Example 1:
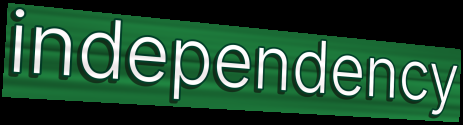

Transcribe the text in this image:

independency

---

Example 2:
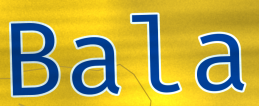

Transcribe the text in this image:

Bala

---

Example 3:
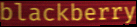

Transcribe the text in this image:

blackberry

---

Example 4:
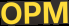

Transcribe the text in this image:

OPM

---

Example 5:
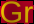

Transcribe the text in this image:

Gr